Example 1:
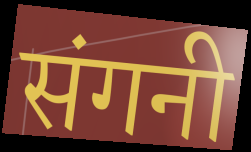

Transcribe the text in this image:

संगनी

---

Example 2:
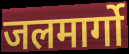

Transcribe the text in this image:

जलमार्गो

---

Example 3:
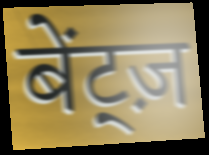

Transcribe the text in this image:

बेंट्ज़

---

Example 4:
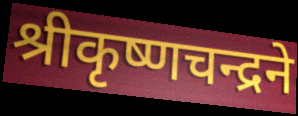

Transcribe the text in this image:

श्रीकृष्णचन्द्रने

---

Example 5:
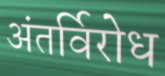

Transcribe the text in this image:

अंतर्विरोध